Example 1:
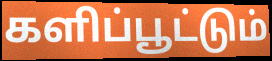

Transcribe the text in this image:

களிப்பூட்டும்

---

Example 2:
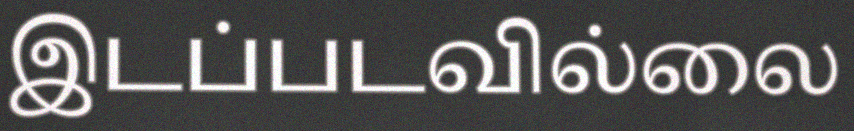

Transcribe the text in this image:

இடப்படவில்லை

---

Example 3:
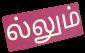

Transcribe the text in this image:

ல்லும்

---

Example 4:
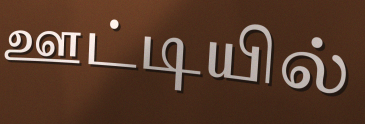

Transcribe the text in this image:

ஊட்டியில்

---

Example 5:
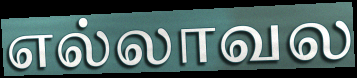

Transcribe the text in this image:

எல்லாவல